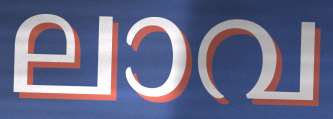
ലാവ